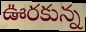
ఊరకున్న